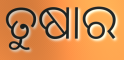
ତୁଷାର